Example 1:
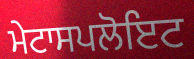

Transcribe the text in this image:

ਮੇਟਾਸਪਲੋਇਟ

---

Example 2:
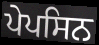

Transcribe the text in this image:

ਪੇਪਸਿਨ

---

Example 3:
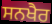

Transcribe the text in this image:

ਸਨਖੈਰ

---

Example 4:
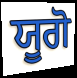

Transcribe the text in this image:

ਯੂਗੋ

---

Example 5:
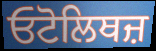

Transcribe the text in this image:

ਓਟੋਲਿਥਜ਼